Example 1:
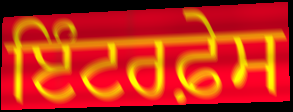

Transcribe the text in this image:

ਇੰਟਰਫ਼ੇਸ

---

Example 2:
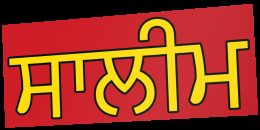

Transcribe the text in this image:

ਸਾਲੀਮ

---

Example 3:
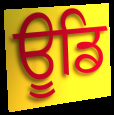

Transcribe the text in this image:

ਊਡਿ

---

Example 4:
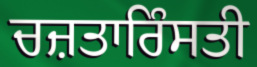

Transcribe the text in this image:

ਚਜ਼ਤਾਰਿੰਸਤੀ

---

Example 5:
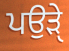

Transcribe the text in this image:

ਪਉੜੑੇ